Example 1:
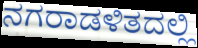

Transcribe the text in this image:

ನಗರಾಡಳಿತದಲ್ಲಿ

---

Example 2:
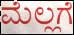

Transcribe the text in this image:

ಮೆಲ್ಲಗೆ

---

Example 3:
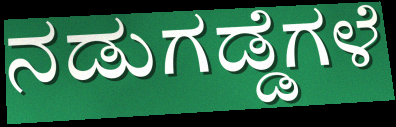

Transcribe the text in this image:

ನಡುಗಡ್ಡೆಗಳೆ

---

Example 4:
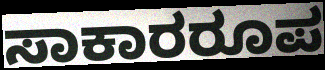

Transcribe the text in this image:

ಸಾಕಾರರೂಪ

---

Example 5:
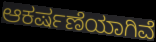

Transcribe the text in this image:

ಆಕರ್ಷಣೆಯಾಗಿವೆ